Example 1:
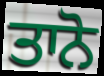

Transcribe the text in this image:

ਤਾਨੋ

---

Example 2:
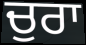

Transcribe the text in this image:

ਚੁਰਾ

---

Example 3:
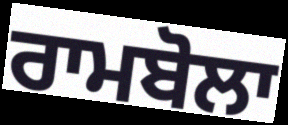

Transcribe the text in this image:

ਰਾਮਬੋਲਾ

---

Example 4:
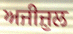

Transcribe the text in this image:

ਅਜੀਜ਼ੁਲ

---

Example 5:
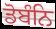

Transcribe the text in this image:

ਡੋਬੰਨਿ